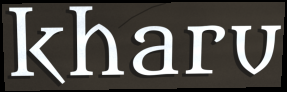
kharu